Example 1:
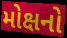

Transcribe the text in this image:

મોક્ષનો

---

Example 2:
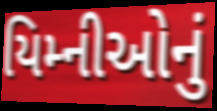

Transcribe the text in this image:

યિમ્નીઓનું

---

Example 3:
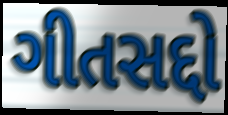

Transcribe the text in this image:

ગીતસદ્દો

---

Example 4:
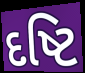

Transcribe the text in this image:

દષ્ટિ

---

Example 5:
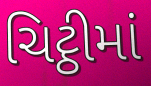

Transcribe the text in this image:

ચિટ્ઠીમાં